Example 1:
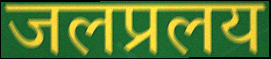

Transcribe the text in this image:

जलप्रलय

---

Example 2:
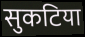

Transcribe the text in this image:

सुकटिया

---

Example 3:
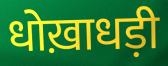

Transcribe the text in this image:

धोख़ाधड़ी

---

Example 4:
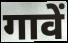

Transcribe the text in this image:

गावें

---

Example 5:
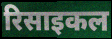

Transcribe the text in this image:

रिसाइकल